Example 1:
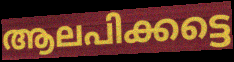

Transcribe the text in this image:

ആലപിക്കട്ടെ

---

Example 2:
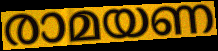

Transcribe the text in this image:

രാമയണ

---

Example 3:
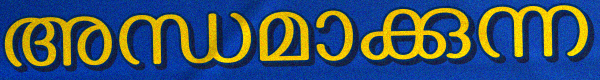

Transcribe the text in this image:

അന്ധമാക്കുന്ന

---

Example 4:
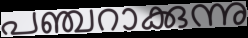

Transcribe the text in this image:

പഞ്ചറാക്കുന്നു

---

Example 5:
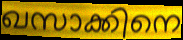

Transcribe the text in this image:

ഖസാക്കിനെ